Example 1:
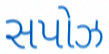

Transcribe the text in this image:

સપોઝ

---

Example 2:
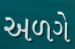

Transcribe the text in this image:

અળગે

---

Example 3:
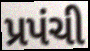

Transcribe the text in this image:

પ્રપંચી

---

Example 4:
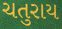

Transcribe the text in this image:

ચતુરાય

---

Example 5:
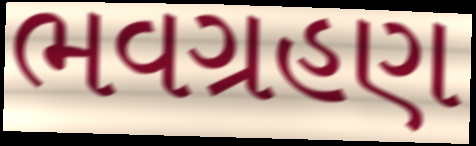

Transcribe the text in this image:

ભવગ્રહણ